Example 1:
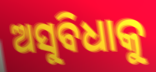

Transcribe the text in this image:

ଅସୁବିଧାକୁ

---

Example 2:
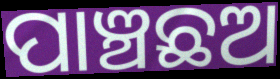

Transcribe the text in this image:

ପାଞ୍ଚଛଅ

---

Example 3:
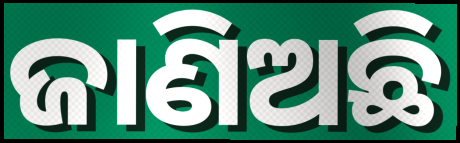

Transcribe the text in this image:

ଜାଣିଅଛି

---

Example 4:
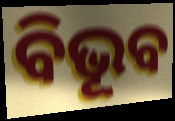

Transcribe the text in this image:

ବିଭୂବ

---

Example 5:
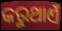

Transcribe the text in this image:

କରୁଥାଏଁ